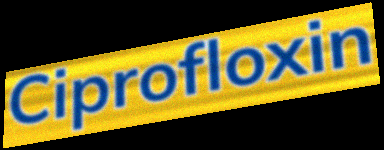
Ciprofloxin